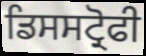
ਡਿਸਸਟ੍ਰੋਫੀ